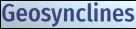
Geosynclines